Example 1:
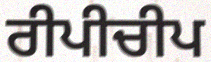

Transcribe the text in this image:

ਰੀਪੀਚੀਪ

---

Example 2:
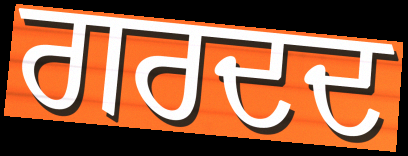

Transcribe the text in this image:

ਗਰਦਦ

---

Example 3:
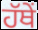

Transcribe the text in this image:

ਹੱਥੇਂ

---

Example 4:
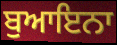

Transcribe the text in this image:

ਬੁਆਇਨਾ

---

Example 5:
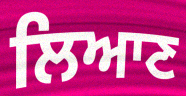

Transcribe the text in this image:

ਲਿਆਣ